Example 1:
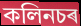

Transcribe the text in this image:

কলিনচৰ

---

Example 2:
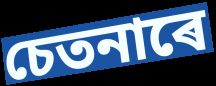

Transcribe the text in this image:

চেতনাৰে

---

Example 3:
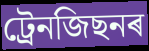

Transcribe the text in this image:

ট্ৰেনজিছনৰ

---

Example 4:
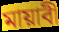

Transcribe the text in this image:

মায়াবী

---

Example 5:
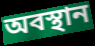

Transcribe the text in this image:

অবস্থান